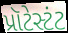
પ્રૉટેસ્ટંટ